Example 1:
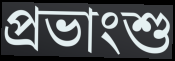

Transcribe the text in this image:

প্রভাংশু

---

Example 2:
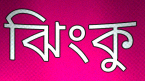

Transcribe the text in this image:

ঝিংকু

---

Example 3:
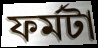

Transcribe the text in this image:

ফর্মটা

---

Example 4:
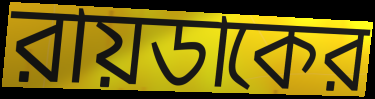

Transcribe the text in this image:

রায়ডাকের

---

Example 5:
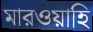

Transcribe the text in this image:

মারওয়াহি